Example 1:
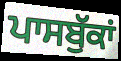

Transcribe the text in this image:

ਪਾਸਬੁੱਕਾਂ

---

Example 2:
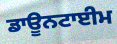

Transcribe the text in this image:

ਡਾਊਨਟਾਈਮ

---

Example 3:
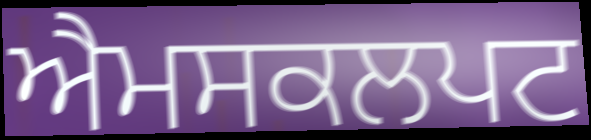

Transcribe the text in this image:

ਐਮਸਕਲਪਟ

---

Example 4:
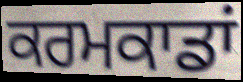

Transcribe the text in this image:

ਕਰਮਕਾਡਾਂ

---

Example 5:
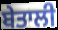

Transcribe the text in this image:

ਬੇਤਾਲੀ